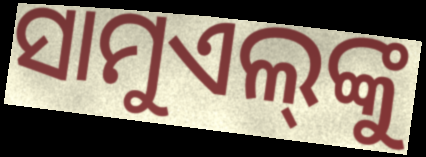
ସାମୁଏଲ୍‌ଙ୍କୁ